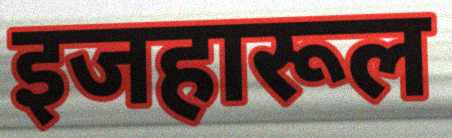
इजहारूल